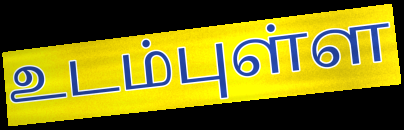
உடம்புள்ள